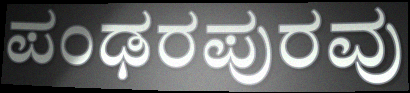
ಪಂಢರಪುರವು